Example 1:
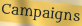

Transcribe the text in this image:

Campaigns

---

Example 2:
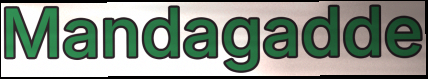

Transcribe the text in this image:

Mandagadde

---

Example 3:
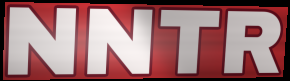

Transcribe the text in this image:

NNTR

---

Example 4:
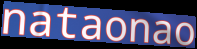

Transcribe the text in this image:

nataonao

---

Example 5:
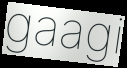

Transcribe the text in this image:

gaagi